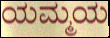
ಯಮ್ಮಯ